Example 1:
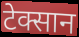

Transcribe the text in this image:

टेक्सान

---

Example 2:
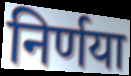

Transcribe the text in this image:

निर्णया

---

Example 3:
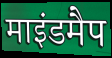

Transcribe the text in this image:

माइंडमैप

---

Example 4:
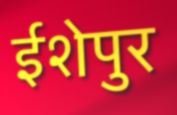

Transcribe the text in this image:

ईशेपुर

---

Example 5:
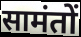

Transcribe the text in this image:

सामंतों